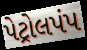
પેટ્રોલપંપ